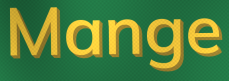
Mange